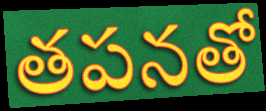
తపనతో